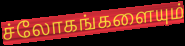
ச்லோகங்களையும்